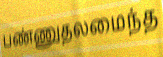
பண்ணுதலமைந்த